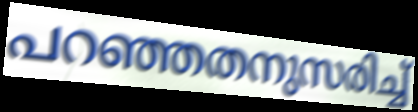
പറഞ്ഞതനുസരിച്ച്